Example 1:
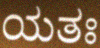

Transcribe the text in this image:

ಯತಃ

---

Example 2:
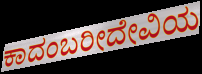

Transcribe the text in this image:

ಕಾದಂಬರೀದೇವಿಯ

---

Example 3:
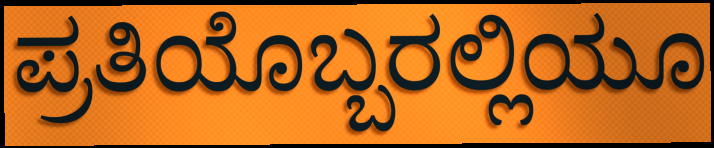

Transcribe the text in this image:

ಪ್ರತಿಯೊಬ್ಬರಲ್ಲಿಯೂ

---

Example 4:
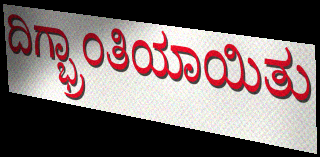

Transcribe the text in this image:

ದಿಗ್ಭ್ರಾಂತಿಯಾಯಿತು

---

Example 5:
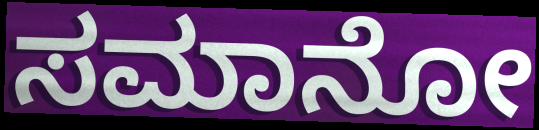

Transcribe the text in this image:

ಸಮಾನೋ